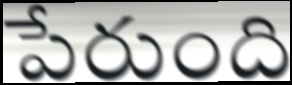
పేరుంది